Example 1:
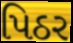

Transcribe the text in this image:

પિઠર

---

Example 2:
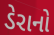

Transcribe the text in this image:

ડેરાનો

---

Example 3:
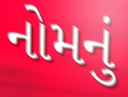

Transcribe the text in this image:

નોમનું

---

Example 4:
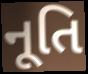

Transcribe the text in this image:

નૂતિ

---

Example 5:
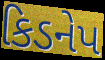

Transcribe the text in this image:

કિડનેપ